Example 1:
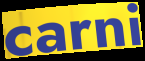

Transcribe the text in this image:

carni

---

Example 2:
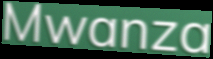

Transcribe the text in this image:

Mwanza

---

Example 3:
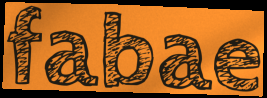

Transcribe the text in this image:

fabae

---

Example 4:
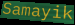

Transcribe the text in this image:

Samayik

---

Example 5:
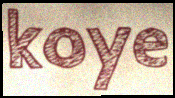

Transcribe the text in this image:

koye